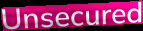
Unsecured